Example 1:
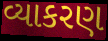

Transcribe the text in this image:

વ્યાકરણ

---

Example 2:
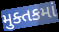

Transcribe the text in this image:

મુક્તકમાં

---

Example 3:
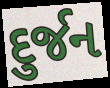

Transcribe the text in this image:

દુર્જન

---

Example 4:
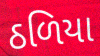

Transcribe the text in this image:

ઠળિયા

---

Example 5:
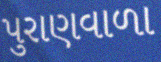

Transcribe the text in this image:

પુરાણવાળા